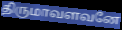
திருமாவளவனே